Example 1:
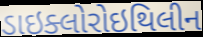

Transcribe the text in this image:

ડાઇક્લોરોઇથિલીન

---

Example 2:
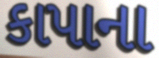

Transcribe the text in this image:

કાપાના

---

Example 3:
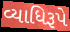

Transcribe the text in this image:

વ્યાધિરૂપે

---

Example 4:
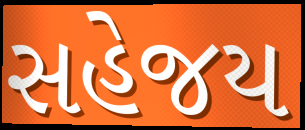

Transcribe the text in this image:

સહેજય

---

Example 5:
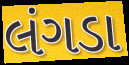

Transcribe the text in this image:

લંગડા